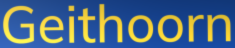
Geithoorn